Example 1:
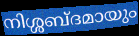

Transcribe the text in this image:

നിശ്ശബ്ദമായും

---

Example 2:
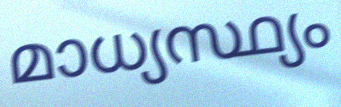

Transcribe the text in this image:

മാധ്യസ്ഥ്യം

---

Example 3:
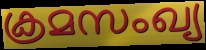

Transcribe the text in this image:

ക്രമസംഖ്യ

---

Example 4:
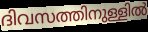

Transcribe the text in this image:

ദിവസത്തിനുള്ളിൽ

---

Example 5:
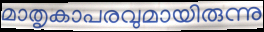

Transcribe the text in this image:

മാതൃകാപരവുമായിരുന്നു